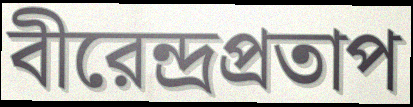
বীরেন্দ্রপ্রতাপ